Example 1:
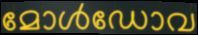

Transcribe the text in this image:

മോൾഡോവ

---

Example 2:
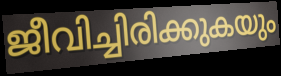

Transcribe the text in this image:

ജീവിച്ചിരിക്കുകയും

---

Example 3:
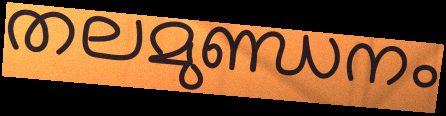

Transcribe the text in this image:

തലമുണ്ഡനം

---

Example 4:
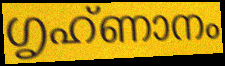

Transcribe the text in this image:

ഗൃഹ്ണാനം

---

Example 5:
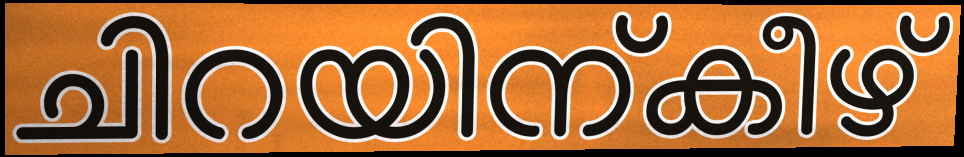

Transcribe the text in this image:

ചിറയിന്കീഴ്